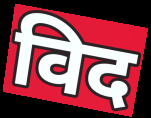
विद